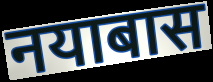
नयाबास